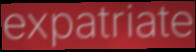
expatriate